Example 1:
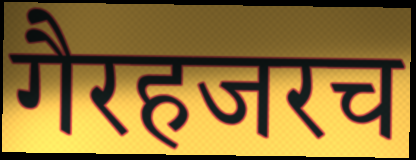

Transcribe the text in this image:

गैरहजरच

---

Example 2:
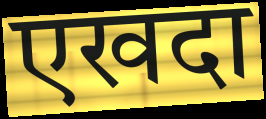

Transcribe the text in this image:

एखदा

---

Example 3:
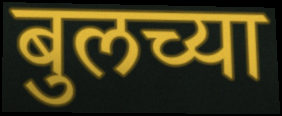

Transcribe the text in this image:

बुलच्या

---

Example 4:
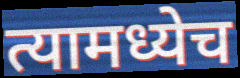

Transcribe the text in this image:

त्यामध्येच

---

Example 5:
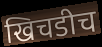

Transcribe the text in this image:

खिचडीच